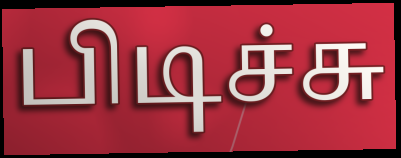
பிடிச்சு